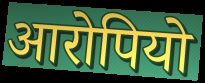
आरोपियो